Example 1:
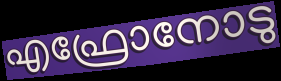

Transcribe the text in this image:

എഫ്രോനോടു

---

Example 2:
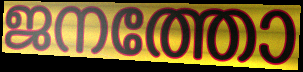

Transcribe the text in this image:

ജനത്തോ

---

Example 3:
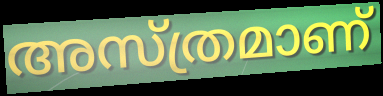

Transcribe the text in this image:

അസ്ത്രമാണ്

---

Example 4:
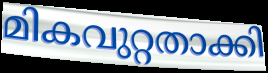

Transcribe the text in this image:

മികവുറ്റതാക്കി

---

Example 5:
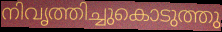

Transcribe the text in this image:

നിവൃത്തിച്ചുകൊടുത്തു